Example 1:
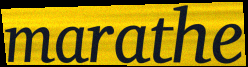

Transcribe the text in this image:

marathe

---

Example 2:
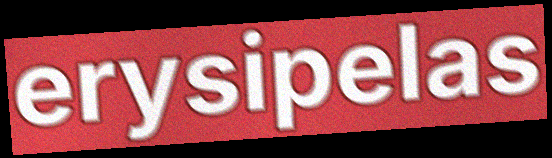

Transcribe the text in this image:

erysipelas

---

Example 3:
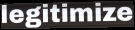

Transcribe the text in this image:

legitimize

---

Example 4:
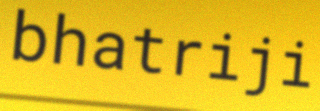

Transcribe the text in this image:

bhatriji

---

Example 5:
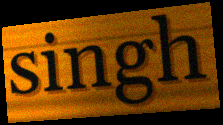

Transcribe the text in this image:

singh